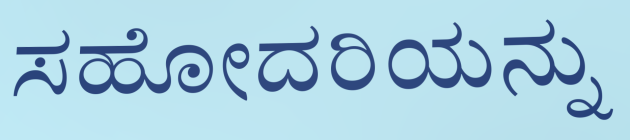
ಸಹೋದರಿಯನ್ನು